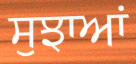
ਸੁਝਾਆਂ